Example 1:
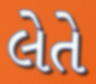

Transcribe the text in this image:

લેતે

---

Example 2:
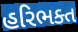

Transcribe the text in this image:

હરિભક્ત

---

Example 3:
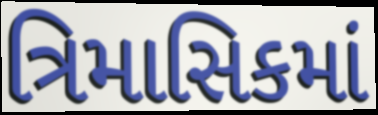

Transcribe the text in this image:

ત્રિમાસિકમાં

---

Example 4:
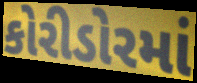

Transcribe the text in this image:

કોરીડોરમાં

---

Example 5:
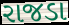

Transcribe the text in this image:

રાજડા